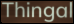
Thingal